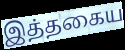
இத்தகைய